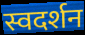
स्वदर्शन